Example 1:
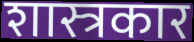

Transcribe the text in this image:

शास्त्रकार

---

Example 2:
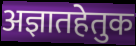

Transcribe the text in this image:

अज्ञातहेतुक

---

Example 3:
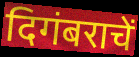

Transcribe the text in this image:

दिगंबराचें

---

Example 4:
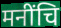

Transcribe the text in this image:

मनींचि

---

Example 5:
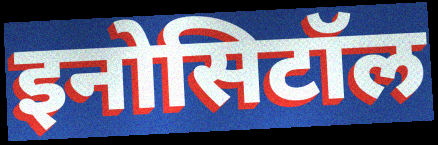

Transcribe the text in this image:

इनोसिटॉल